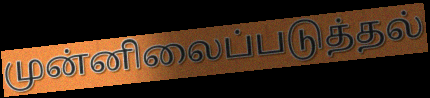
முன்னிலைப்படுத்தல்